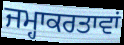
ਜਮ੍ਹਾਕਰਤਾਵਾਂ